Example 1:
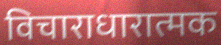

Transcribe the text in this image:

विचाराधारात्मक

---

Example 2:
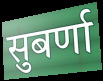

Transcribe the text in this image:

सुबर्णा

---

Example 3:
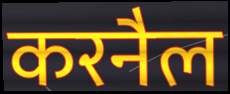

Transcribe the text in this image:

करनैल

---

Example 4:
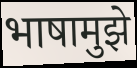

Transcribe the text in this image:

भाषामुझे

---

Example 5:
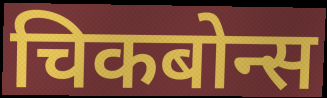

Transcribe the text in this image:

चिकबोन्स